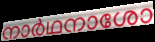
നാർഥനാശോ